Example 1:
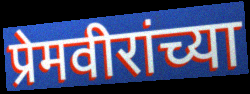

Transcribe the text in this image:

प्रेमवीरांच्या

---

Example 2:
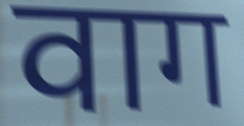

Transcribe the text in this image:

वाग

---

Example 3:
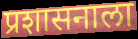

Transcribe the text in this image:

प्रशासनाला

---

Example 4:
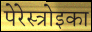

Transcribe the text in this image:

पेरेस्त्रोइका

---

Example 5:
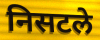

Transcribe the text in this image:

निसटले